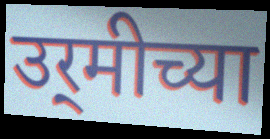
उर्मीच्या